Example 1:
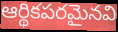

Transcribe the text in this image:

ఆర్థికపరమైనవి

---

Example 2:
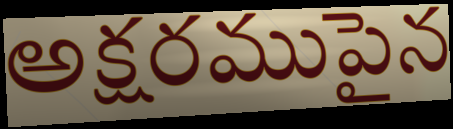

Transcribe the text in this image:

అక్షరముపైన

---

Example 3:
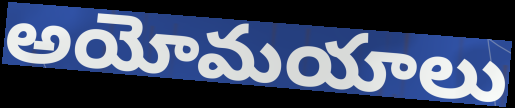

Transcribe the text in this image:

అయోమయాలు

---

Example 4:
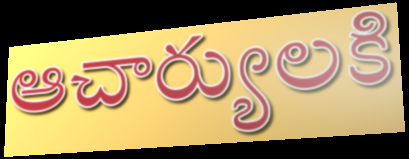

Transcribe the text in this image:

ఆచార్యులకి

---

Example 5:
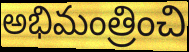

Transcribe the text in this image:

అభిమంత్రించి